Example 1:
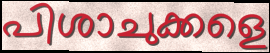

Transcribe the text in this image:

പിശാചുക്കളെ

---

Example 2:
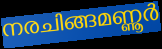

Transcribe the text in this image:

നരചിങ്ങമണ്ണൂർ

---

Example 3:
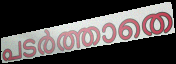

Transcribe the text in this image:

പടർത്താതെ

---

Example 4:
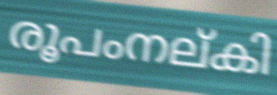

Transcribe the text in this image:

രൂപംനല്കി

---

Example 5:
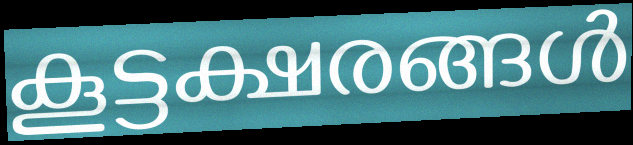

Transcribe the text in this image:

കൂട്ടക്ഷരങ്ങൾ